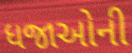
ધજાઓની